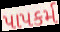
પાપકર્મ